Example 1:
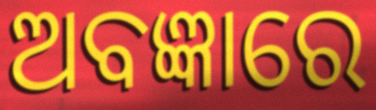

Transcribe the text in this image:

ଅବଜ୍ଞାରେ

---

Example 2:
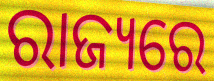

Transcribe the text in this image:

ରାଜ୍ଯରେ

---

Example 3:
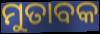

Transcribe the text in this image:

ମୁତାବକ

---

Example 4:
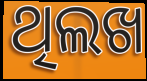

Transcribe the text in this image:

ଥିଲଖ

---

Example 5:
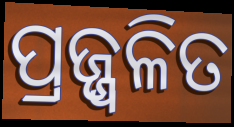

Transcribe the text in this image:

ପ୍ରଜ୍ଜ୍ବଳିତ